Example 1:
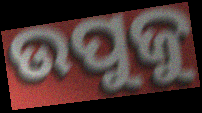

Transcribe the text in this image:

ଉପୁଜୁ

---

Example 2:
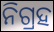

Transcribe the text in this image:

ନିଗ୍ରହ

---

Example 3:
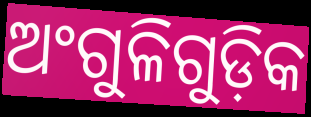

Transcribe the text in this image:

ଅଂଗୁଳିଗୁଡ଼ିକ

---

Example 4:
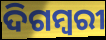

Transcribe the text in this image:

ଦିଗମ୍ୱରୀ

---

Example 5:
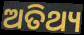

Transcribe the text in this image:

ଅତିଥ୍ୟ